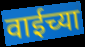
वाईच्या